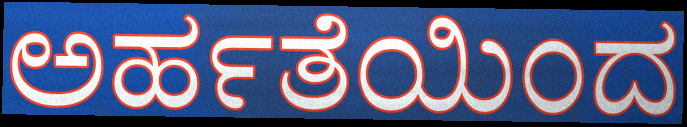
ಅರ್ಹತೆಯಿಂದ